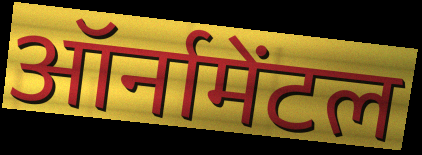
ऑर्नामेंटल